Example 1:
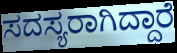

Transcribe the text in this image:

ಸದಸ್ಯರಾಗಿದ್ದಾರೆ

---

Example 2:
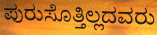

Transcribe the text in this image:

ಪುರುಸೊತ್ತಿಲ್ಲದವರು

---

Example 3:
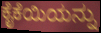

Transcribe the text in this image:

ಕೈಕೆಯಿಯನ್ನು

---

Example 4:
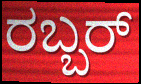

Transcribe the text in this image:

ರಬ್ಬರ್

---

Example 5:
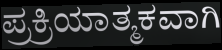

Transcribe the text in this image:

ಪ್ರಕ್ರಿಯಾತ್ಮಕವಾಗಿ